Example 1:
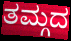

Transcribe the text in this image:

ತಮ್ಗದ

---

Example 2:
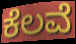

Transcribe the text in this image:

ಕೆಲವೆ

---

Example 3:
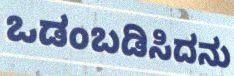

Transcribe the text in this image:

ಒಡಂಬಡಿಸಿದನು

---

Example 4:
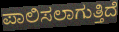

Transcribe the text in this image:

ಪಾಲಿಸಲಾಗುತ್ತಿದೆ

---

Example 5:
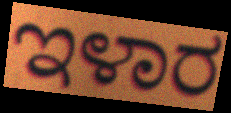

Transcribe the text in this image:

ಇಳಾರ